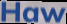
Haw